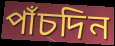
পাঁচদিন